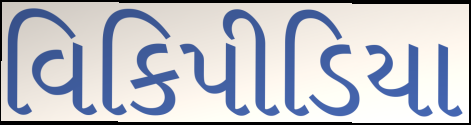
વિકિપીડિયા